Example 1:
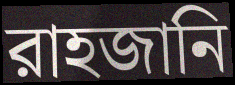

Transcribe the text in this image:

রাহজানি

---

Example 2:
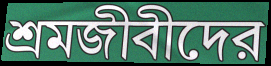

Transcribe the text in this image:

শ্রমজীবীদের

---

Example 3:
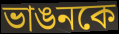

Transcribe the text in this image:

ভাঙনকে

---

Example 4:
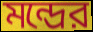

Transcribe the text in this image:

মন্দ্রের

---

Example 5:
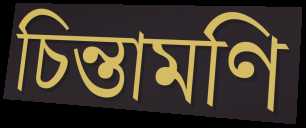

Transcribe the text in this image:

চিন্তামণি